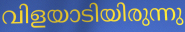
വിളയാടിയിരുന്നു